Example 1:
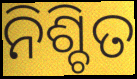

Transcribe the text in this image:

ନିଶ୍ଚିତ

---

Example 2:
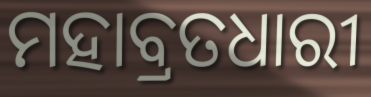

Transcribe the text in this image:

ମହାବ୍ରତଧାରୀ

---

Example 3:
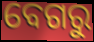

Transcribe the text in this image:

ବେଗରୁ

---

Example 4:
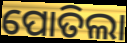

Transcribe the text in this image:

ପୋତିଲା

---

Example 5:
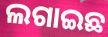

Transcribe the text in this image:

ଲଗାଇଛ